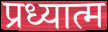
प्रध्यात्म